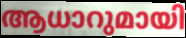
ആധാറുമായി